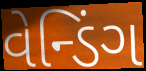
વેન્ડિંગ